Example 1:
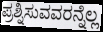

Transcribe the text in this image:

ಪ್ರಶ್ನಿಸುವವರನ್ನೆಲ್ಲ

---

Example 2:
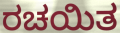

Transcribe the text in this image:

ರಚಯಿತ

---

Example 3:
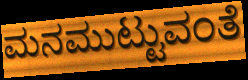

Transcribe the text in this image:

ಮನಮುಟ್ಟುವಂತೆ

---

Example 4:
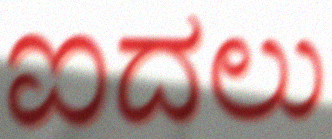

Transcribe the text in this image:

ಐದಲು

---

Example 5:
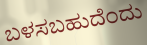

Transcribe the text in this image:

ಬಳಸಬಹುದೆಂದು